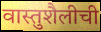
वास्तुशैलीची